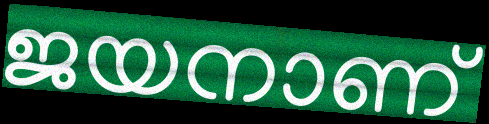
ജയനാണ്